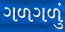
ગળગળું